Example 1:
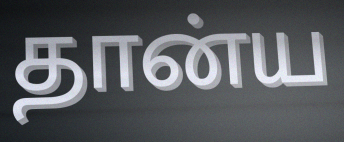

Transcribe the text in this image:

தான்ய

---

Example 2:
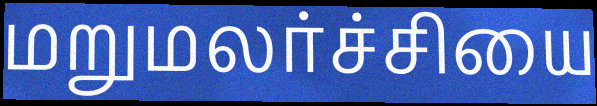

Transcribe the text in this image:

மறுமலர்ச்சியை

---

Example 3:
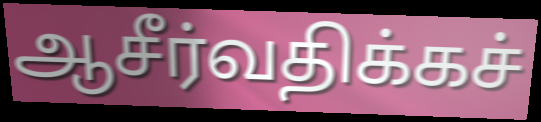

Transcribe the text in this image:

ஆசீர்வதிக்கச்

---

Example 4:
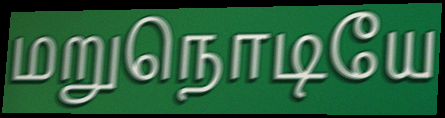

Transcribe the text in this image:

மறுநொடியே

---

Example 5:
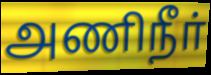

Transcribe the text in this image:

அணிநீர்